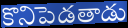
కొనిపెడతాడు